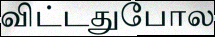
விட்டதுபோல